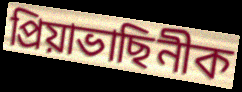
প্ৰিয়াভাছিনীক